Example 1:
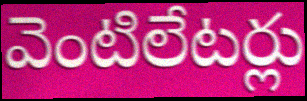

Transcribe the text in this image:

వెంటిలేటర్లు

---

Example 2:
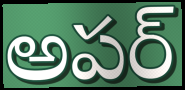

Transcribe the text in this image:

అపర్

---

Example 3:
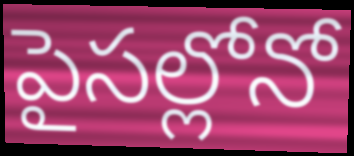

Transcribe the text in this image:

పైసల్లోనో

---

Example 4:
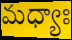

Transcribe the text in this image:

మధ్యాః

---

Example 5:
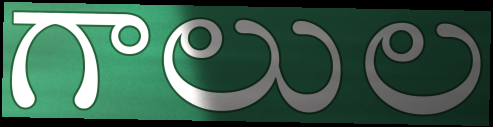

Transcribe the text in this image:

గాలుల